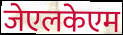
जेएलकेएम